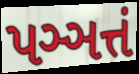
પઞ્ઞત્તં